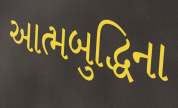
આત્મબુદ્ધિના